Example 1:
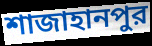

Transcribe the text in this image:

শাজাহানপুর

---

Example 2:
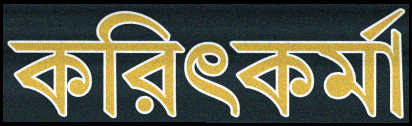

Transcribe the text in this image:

করিৎকর্মা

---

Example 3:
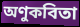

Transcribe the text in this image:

অণুকবিতা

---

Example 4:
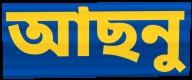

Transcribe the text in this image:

আছনু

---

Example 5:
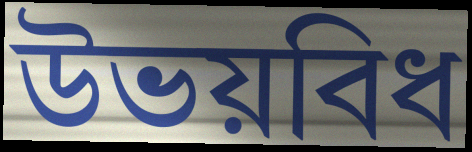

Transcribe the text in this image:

উভয়বিধ